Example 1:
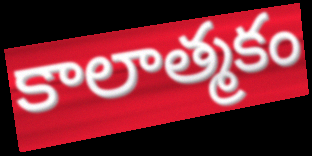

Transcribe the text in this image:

కాలాత్మకం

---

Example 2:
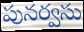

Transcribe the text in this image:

పునర్వసు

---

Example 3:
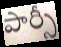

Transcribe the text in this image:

పార్సీ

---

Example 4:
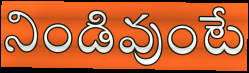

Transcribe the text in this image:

నిండివుంటే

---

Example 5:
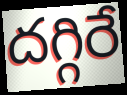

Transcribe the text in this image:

దగ్గిరే